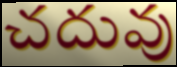
చదువు